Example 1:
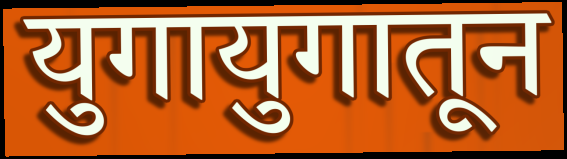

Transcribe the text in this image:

युगायुगातून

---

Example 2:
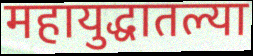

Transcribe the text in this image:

महायुद्धातल्या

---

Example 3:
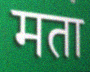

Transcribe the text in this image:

मता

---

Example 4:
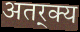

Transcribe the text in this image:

अतर्क्य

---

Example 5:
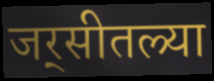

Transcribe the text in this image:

जर्सीतल्या